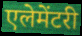
एलेमेंटरी